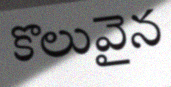
కొలువైన